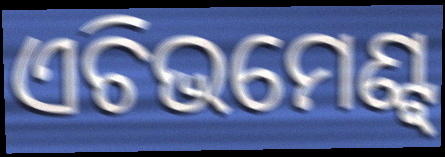
ଏଚିଭମେଣ୍ଟ୍